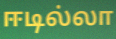
ஈடில்லா